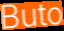
Buto